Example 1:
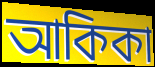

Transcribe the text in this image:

আকিকা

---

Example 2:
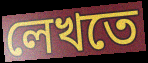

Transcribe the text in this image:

লেখতে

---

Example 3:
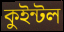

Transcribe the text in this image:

কুইন্টল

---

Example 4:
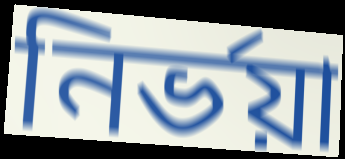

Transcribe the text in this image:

নির্ভয়া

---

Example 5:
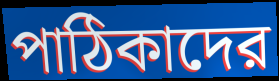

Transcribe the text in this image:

পাঠিকাদের